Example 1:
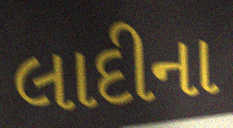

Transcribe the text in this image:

લાદીના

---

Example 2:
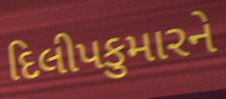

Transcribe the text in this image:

દિલીપકુમારને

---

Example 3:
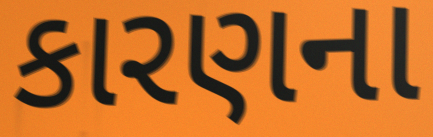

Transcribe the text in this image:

કારણના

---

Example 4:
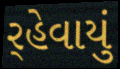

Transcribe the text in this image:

ર્‌હેવાયું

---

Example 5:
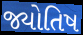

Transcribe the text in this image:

જ્યોતિષ